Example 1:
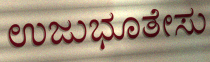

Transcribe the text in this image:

ಉಜುಭೂತೇಸು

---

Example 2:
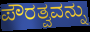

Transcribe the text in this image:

ಪೌರತ್ವವನ್ನು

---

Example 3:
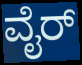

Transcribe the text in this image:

ವೈರ್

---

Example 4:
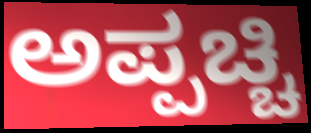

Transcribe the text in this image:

ಅಪ್ಪಚ್ಚಿ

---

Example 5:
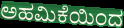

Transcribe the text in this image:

ಅಹಮಿಕೆಯಿಂದ